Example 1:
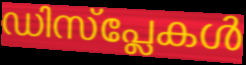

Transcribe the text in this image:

ഡിസ്പ്ലേകൾ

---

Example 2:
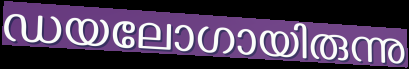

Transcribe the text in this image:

ഡയലോഗായിരുന്നു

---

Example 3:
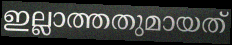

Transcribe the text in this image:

ഇല്ലാത്തതുമായത്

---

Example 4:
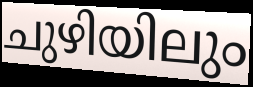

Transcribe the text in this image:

ചുഴിയിലും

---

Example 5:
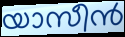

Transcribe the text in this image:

യാസീൻ